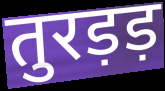
तुरड़ड़